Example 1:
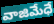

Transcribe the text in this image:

వాజిమేధే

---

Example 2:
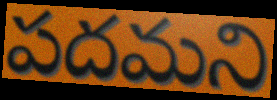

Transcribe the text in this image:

పదమని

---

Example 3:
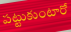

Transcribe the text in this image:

పట్టుకుంటారో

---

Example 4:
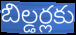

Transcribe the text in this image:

బిల్డర్లకు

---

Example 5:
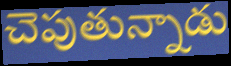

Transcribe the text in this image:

చెపుతున్నాడు